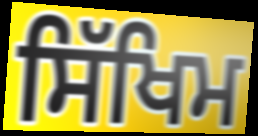
ਸਿੱਖਿਮ